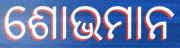
ଶୋଭମାନ